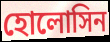
হোলোসিন